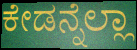
ಕೇಡನ್ನೆಲ್ಲಾ